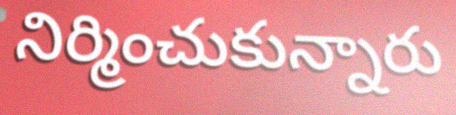
నిర్మించుకున్నారు